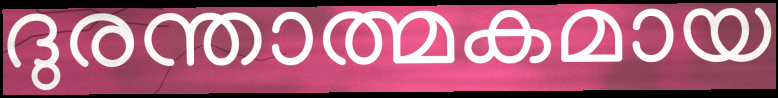
ദുരന്താത്മകമായ